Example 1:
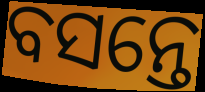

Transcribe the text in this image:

ବସନ୍ତେ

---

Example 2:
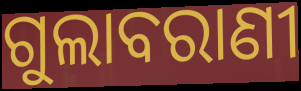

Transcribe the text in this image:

ଗୁଲାବରାଣୀ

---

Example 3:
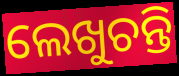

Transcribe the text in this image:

ଲେଖୁଚନ୍ତି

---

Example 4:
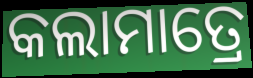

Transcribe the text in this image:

କଲାମାତ୍ରେ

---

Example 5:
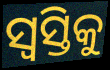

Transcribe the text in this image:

ସ୍ୱସ୍ତିକୁ